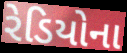
રેડિયોના